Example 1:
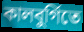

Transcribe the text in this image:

কালবুর্গিতে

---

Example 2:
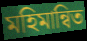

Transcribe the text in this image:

মহিমান্বিত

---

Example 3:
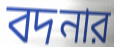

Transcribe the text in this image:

বদনার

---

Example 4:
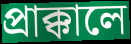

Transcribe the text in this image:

প্রাক্কালে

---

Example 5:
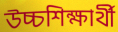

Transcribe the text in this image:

উচ্চশিক্ষার্থী